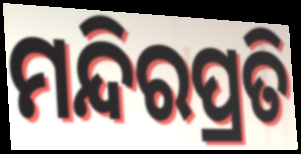
ମନ୍ଦିରପ୍ରତି